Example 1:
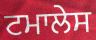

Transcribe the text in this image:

ਟਮਾਲੇਸ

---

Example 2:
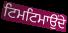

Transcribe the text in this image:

ਟਿਮਟਿਮਾਉਂਦੇ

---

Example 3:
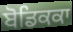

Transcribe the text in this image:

ਬੋਡਿਕਕਾ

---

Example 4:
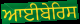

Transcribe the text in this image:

ਆਈਬੇਰਿਸ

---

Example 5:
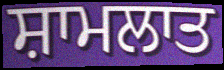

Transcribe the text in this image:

ਸ਼ਾਮਲਾਤ